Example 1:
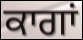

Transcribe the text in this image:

ਕਾਗਾਂ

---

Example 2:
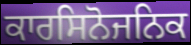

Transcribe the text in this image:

ਕਾਰਸਿਨੋਜਨਿਕ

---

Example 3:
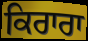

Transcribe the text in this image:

ਕਿਰਾਰਾ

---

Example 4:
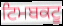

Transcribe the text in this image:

ਟਿਮਬਕਟੂ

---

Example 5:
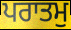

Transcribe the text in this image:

ਪਰਾਤਮੁ